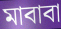
মাবাবা